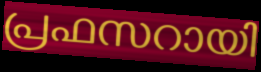
പ്രഫസറായി